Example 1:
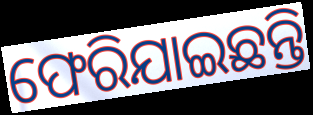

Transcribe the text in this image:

ଫେରିଯାଇଛନ୍ତି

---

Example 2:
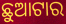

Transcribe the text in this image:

ଛୁଆଟାର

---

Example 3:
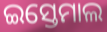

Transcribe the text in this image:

ଇସ୍ତେମାଲ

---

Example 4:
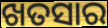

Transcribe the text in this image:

ଖତସାର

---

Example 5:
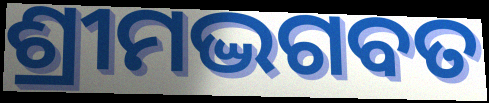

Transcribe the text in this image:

ଶ୍ରୀମଦ୍ଭଗବତ